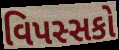
વિપસ્સકો